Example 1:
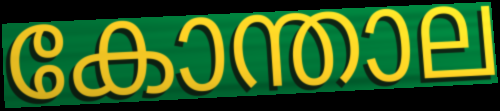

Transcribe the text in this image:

കോന്താല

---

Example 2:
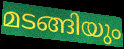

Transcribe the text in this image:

മടങ്ങിയും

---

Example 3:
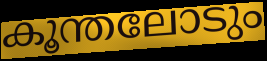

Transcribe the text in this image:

കൂന്തലോടും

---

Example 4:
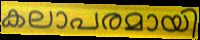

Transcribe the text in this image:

കലാപരമായി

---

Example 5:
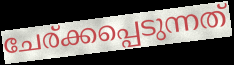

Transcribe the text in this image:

ചേര്ക്കപ്പെടുന്നത്